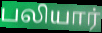
பலியார்